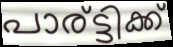
പാര്ട്ടിക്ക്